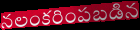
నలంకరింపబడిన